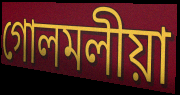
গোলমলীয়া